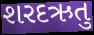
શરદઋતુ